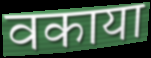
वकाया